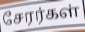
சேரர்கள்